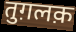
तुग़लक़